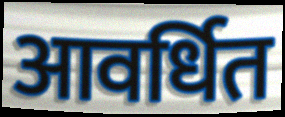
आवर्धित